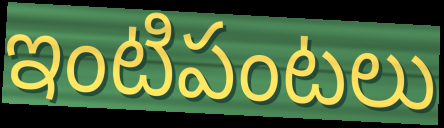
ఇంటిపంటలు